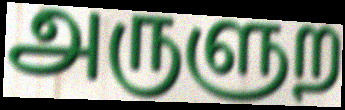
அருளுற